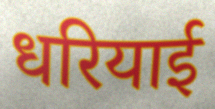
धरियाई